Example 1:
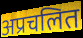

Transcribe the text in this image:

अप्रचलित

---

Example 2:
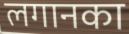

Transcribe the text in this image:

लगानका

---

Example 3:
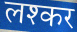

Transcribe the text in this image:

लश्कर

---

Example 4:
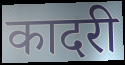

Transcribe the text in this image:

कादरी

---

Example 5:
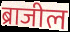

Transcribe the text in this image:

ब्राजील